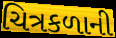
ચિત્રકળાની